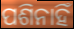
ପଶିନାହିଁ